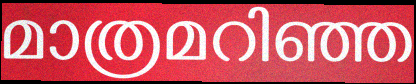
മാത്രമറിഞ്ഞ